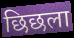
छिछला